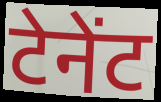
टेनेंट